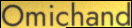
Omichand